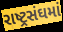
રાષ્ટ્રસંઘમાં